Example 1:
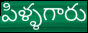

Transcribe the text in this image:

పిళ్ళగారు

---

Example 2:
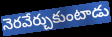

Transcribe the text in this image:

నెరవేర్చుకుంటాడు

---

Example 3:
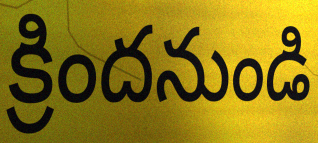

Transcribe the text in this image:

క్రిందనుండి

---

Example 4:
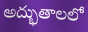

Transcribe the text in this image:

అద్భుతాలలో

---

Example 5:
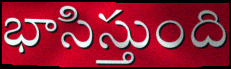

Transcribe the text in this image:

భాసిస్తుంది